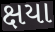
ક્ષયા